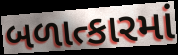
બળાત્કારમાં